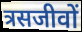
त्रसजीवों